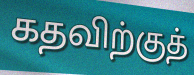
கதவிற்குத்